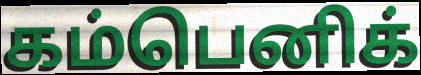
கம்பெனிக்